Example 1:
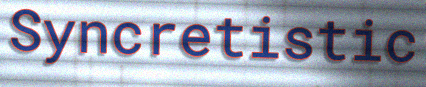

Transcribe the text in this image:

Syncretistic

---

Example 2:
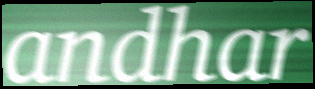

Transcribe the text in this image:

andhar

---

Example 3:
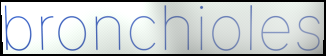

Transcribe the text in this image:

bronchioles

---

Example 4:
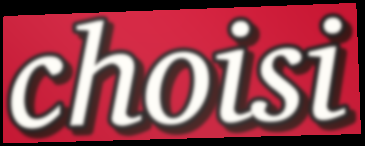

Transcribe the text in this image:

choisi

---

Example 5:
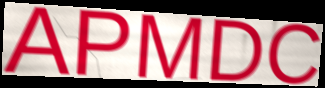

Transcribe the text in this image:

APMDC